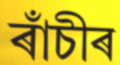
ৰাঁচীৰ